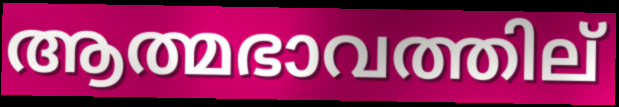
ആത്മഭാവത്തില്